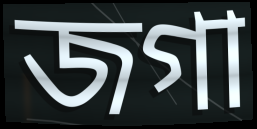
জগা